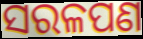
ସରଳପଣ